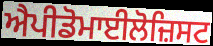
ਐਪੀਡੋਮਾਈਲੋਜ਼ਿਸਟ